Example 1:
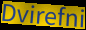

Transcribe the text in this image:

Dvirefni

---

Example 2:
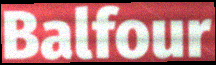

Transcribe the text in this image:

Balfour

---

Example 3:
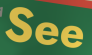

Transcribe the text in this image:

See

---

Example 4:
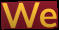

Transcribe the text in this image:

We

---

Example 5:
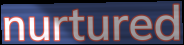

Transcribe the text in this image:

nurtured